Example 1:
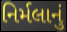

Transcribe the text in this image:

નિર્મલાનું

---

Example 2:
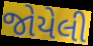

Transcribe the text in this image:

જોયેલી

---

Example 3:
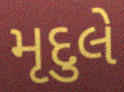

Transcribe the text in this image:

મૃદુલે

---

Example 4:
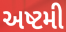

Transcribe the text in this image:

અષ્ટમી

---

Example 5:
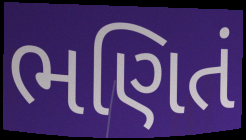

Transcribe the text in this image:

ભણિતં